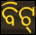
ବିଟ୍